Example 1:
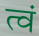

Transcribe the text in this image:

त्वं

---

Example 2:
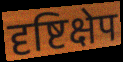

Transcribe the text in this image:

दृष्टिक्षेप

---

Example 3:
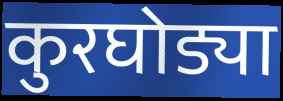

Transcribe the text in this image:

कुरघोड्या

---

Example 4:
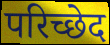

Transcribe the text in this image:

परिच्छेद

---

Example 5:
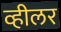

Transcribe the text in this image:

व्हीलर